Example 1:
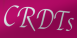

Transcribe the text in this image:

CRDTs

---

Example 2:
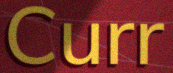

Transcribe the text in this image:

Curr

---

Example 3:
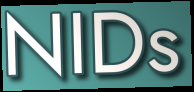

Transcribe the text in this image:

NIDs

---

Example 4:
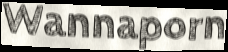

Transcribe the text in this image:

Wannaporn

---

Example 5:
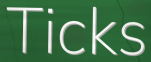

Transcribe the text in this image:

Ticks